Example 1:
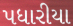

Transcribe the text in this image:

પધારીયા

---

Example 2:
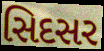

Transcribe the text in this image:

સિદસર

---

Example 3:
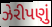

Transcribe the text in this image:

ઝેરીપણું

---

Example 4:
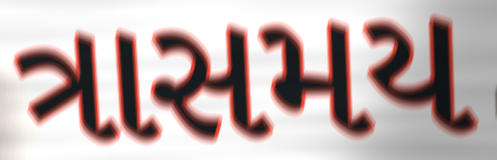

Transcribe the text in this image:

ત્રાસમય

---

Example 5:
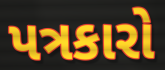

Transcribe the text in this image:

પત્રકારો